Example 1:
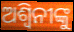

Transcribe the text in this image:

ଅଶ୍ୱିନୀଙ୍କୁ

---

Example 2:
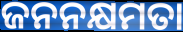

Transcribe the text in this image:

ଜନନକ୍ଷମତା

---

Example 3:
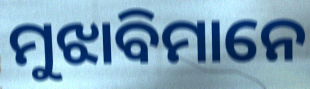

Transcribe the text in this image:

ମୁଝାବିମାନେ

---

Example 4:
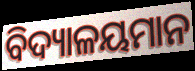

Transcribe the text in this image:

ବିଦ୍ୟାଳୟମାନ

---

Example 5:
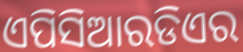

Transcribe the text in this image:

ଏପିସିଆରଡିଏର